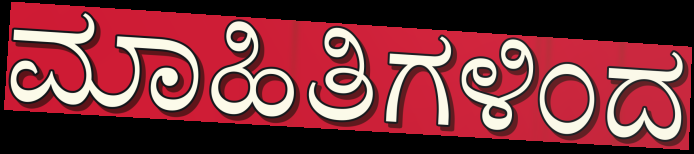
ಮಾಹಿತಿಗಳಿಂದ